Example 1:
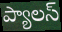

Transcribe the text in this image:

ప్యాలస్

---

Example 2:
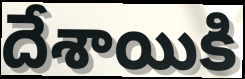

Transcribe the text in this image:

దేశాయికి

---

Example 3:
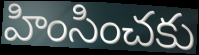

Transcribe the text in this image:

హింసించకు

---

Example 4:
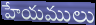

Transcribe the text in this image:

హేయములు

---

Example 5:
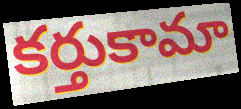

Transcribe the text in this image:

కర్తుకామా